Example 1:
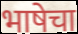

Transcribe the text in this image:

भाषेचा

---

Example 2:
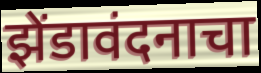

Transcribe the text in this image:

झेंडावंदनाचा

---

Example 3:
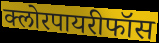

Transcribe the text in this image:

क्लोरपायरीफॉस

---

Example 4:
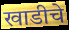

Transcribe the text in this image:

खाडीचे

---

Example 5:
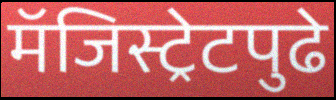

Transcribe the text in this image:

मॅजिस्ट्रेटपुढे